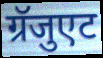
ग्रॅजुएट